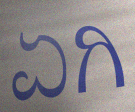
ಏಗಿ